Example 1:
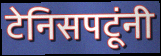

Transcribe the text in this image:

टेनिसपटूंनी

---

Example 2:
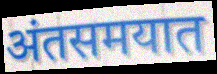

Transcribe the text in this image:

अंतसमयात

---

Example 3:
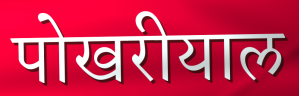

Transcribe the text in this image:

पोखरीयाल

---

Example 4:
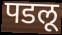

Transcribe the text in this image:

पडलू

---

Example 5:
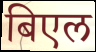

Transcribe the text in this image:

बिएल